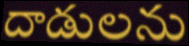
దాడులను